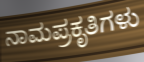
ನಾಮಪ್ರಕೃತಿಗಳು